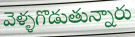
వెళ్ళగొడుతున్నారు